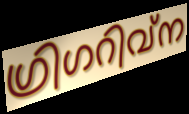
ഗ്രിഗറിവ്ന